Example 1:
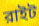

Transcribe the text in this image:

রাইট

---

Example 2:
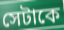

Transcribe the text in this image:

সেটাকে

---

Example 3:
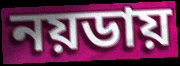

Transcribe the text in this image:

নয়ডায়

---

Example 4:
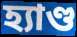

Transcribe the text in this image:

হ্যাণ্ড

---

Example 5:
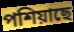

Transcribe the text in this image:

পশিয়াছে